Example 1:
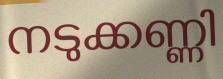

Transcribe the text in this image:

നടുക്കണ്ണി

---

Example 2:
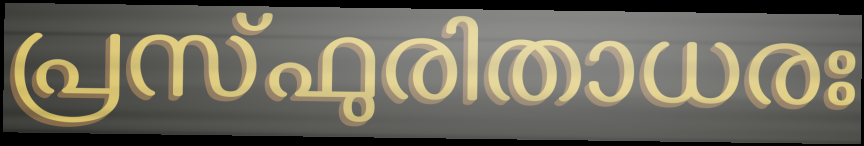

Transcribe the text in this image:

പ്രസ്ഫുരിതാധരഃ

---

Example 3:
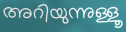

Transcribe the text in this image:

അറിയുന്നുള്ളൂ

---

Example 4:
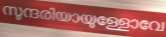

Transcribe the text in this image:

സുന്ദരിയായുള്ളോവേ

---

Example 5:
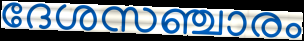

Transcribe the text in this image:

ദേശസഞ്ചാരം